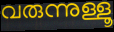
വരുന്നുള്ളൂ